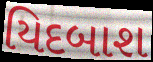
યિદબાશ